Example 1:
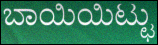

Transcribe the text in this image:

ಬಾಯಿಯಿಟ್ಟು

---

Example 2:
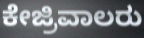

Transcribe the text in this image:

ಕೇಜ್ರಿವಾಲರು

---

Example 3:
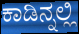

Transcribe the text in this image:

ಕಾಡಿನ್ನಲ್ಲಿ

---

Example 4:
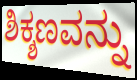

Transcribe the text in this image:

ಶಿಕ್ಶಣವನ್ನು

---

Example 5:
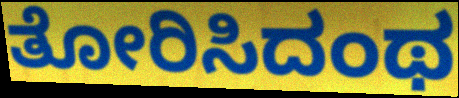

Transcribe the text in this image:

ತೋರಿಸಿದಂಥ